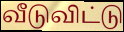
வீடுவிட்டு